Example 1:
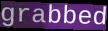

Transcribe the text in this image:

grabbed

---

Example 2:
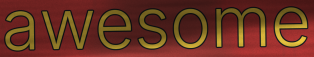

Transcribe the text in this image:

awesome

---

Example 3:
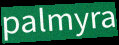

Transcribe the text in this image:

palmyra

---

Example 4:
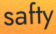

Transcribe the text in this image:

safty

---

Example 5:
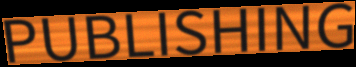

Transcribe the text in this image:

PUBLISHING